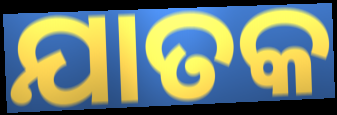
ଯାତକ